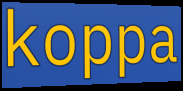
koppa